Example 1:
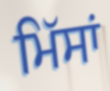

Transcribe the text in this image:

ਮਿੱਸਾਂ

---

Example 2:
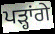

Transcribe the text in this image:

ਪੜ੍ਹਾਂਗੇ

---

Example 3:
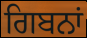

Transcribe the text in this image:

ਗਿਬਨਾਂ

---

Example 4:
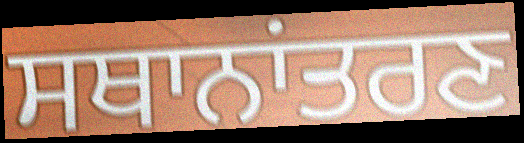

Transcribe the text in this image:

ਸਥਾਨਾਂਤਰਣ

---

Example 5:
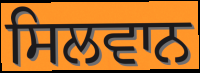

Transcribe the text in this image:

ਸਿਲਵਾਨ